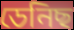
ডেনিছ